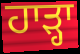
ਹਾੜ੍ਹਾ